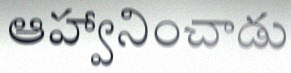
ఆహ్వానించాడు